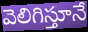
వెలిగిస్తూనే